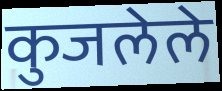
कुजलेले